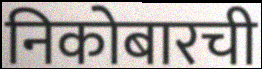
निकोबारची